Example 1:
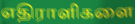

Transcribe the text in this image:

எதிராளிகளை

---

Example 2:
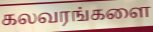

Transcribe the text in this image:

கலவரங்களை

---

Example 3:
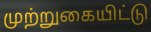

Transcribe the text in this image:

முற்றுகையிட்டு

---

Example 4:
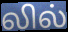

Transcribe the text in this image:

லில்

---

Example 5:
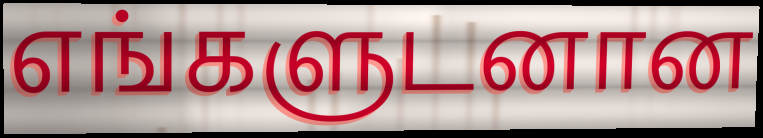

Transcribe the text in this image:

எங்களுடனான